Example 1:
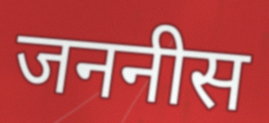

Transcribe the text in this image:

जननीस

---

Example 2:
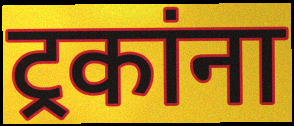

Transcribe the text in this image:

ट्रकांना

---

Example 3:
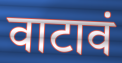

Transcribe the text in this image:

वाटावं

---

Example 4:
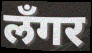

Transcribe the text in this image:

लँगर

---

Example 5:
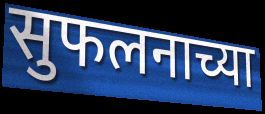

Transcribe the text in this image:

सुफलनाच्या